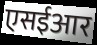
एसईआर